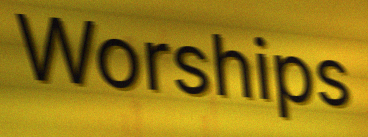
Worships